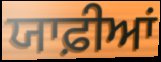
ਯਾਫ਼ੀਆਂ